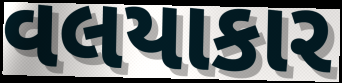
વલયાકાર